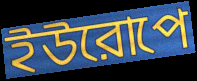
ইউরোপে